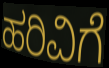
ಹರಿವಿಗೆ